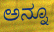
ಅನ್ನೂ